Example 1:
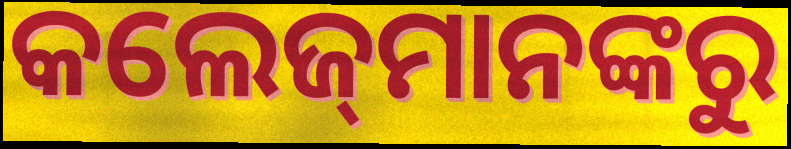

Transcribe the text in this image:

କଲେଜ୍‌ମାନଙ୍କରୁ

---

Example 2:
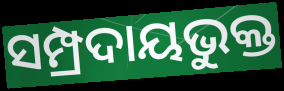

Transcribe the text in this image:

ସମ୍ପ୍ରଦାୟଭୁକ୍ତ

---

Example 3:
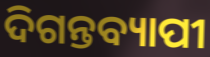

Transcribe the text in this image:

ଦିଗନ୍ତବ୍ୟାପୀ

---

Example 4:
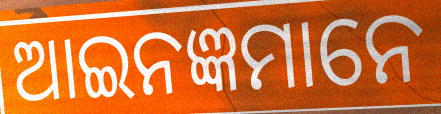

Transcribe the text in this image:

ଆଇନଜ୍ଞମାନେ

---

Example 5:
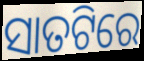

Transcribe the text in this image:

ସାତଟିରେ